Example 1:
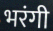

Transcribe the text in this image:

भरंगी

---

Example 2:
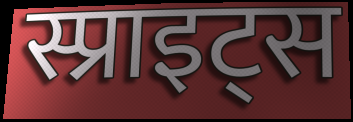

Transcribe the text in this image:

स्प्राइट्स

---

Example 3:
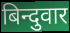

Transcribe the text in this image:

बिन्दुवार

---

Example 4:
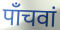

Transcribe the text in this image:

पाँचवां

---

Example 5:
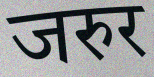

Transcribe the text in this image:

जरुर